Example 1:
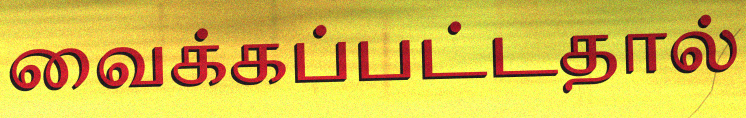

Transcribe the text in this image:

வைக்கப்பட்டதால்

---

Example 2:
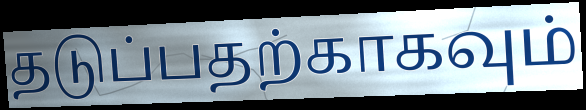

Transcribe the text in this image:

தடுப்பதற்காகவும்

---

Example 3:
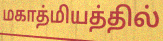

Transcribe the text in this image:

மகாத்மியத்தில்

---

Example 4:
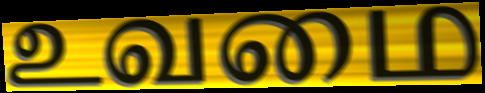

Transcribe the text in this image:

உவமை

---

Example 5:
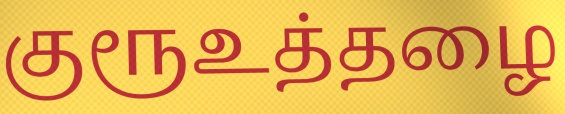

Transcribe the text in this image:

குரூஉத்தழை